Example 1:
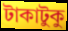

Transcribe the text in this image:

টাকাটুকু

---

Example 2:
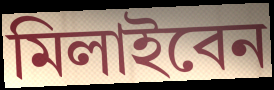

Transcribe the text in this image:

মিলাইবেন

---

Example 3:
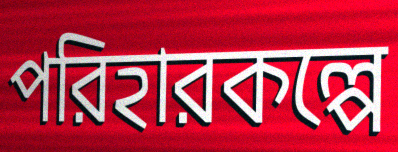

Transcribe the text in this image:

পরিহারকল্পে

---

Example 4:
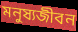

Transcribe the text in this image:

মনুষ্যজীবন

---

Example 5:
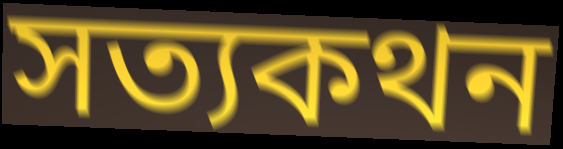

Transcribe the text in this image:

সত্যকথন